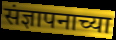
संज्ञापनाच्या